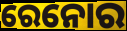
ରେନୋର